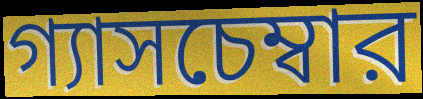
গ্যাসচেম্বার